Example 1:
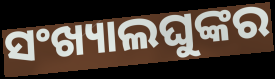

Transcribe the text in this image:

ସଂଖ୍ୟାଲଘୁଙ୍କର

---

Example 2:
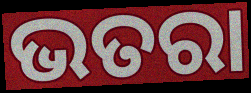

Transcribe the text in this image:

ଭତରା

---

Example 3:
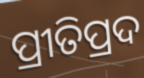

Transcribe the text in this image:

ପ୍ରୀତିପ୍ରଦ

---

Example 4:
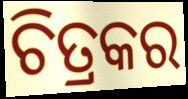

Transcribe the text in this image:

ଚିତ୍ରକର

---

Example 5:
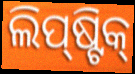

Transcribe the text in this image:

ଲିପ୍‌ଷ୍ଟିକ୍